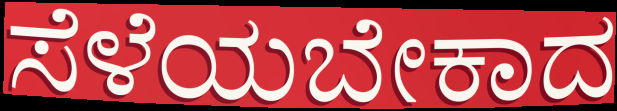
ಸೆಳೆಯಬೇಕಾದ